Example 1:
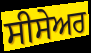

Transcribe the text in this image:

ਸੀਸੇਅਰ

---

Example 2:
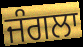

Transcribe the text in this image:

ਜੰਗਲਾ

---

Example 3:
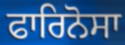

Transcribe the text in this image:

ਫਾਰਿਨੋਸਾ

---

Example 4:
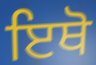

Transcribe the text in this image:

ਇਥੋ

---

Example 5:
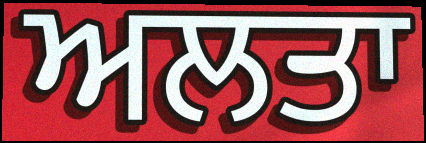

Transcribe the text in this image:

ਅਲਤਾ